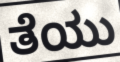
ತೆಯು